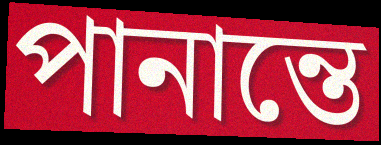
পানান্তে